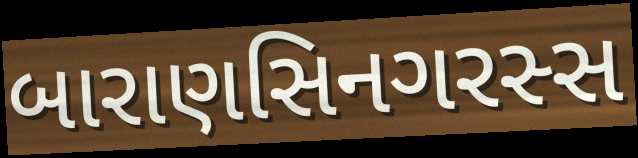
બારાણસિનગરસ્સ